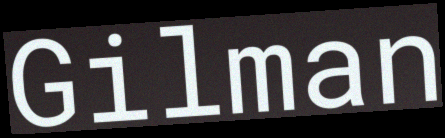
Gilman